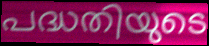
പദ്ധതിയുടെ